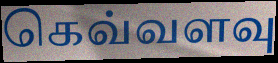
கெவ்வளவு